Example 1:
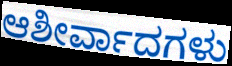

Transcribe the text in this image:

ಆಶೀರ್ವಾದಗಳು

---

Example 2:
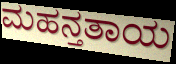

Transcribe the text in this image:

ಮಹನ್ತತಾಯ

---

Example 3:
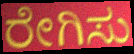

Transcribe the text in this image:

ರೇಗಿಸು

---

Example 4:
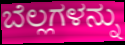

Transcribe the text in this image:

ಬೆಲ್ಲಗಳನ್ನು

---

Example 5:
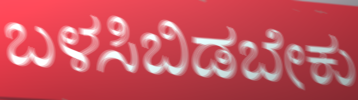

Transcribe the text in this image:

ಬಳಸಿಬಿಡಬೇಕು